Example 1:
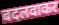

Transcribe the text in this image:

बदलवाकर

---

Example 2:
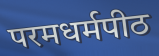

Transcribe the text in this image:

परमधर्मपीठ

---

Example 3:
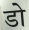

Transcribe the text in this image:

डो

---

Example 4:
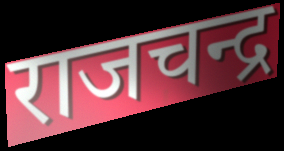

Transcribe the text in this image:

राजचन्द्र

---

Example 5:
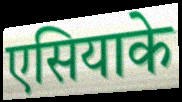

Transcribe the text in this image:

एसियाके